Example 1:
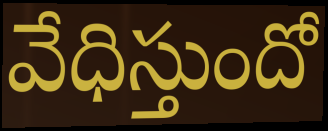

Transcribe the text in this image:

వేధిస్తుందో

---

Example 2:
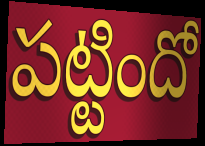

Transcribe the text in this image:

పట్టిందో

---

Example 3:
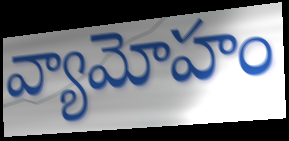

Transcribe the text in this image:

వ్యామోహం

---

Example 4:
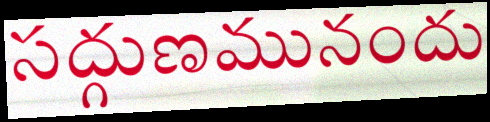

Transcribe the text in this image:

సద్గుణమునందు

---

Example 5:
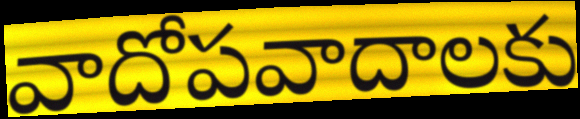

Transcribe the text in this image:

వాదోపవాదాలకు